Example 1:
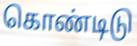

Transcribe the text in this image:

கொண்டிடு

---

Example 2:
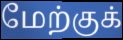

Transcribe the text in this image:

மேற்குக்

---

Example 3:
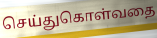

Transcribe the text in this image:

செய்துகொள்வதை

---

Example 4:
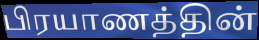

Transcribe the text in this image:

பிரயாணத்தின்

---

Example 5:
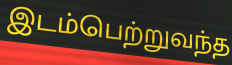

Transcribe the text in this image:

இடம்பெற்றுவந்த